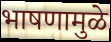
भाषणामुळे